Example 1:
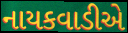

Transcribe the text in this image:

નાયકવાડીએ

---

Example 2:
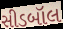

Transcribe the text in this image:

સીડબૉલ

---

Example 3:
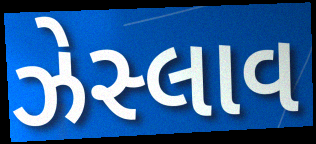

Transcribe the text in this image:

ઝેસ્લાવ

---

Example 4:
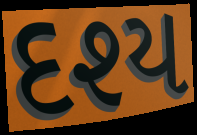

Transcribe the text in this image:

દશ્ય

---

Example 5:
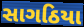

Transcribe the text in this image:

સાગઠિયા